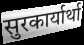
सुरकार्यार्था